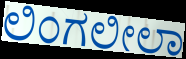
ಲಿಂಗಲೀಲಾ